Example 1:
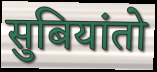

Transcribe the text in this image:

सुबियांतो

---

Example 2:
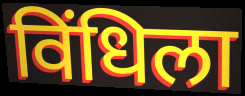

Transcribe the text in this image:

विंधिला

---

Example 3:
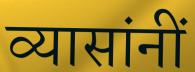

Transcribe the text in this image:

व्यासांनीं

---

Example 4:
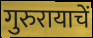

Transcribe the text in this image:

गुरुरायाचें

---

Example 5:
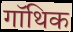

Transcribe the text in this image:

गॉथिक